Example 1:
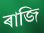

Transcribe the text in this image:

ৰাজি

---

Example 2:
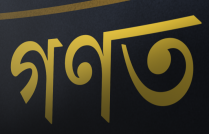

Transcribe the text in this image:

গণত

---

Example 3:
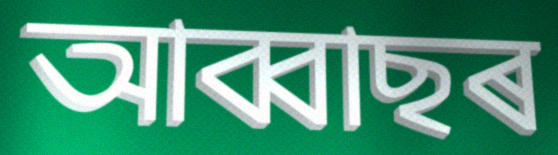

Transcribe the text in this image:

আব্বাছৰ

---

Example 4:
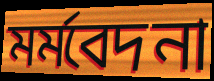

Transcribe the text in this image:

মৰ্মবেদনা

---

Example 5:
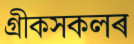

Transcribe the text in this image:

গ্ৰীকসকলৰ